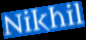
Nikhil